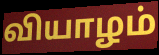
வியாழம்